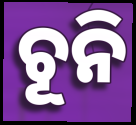
ଚୂନି